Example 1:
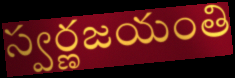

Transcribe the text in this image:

స్వర్ణజయంతి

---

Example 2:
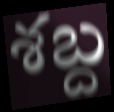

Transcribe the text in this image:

శబ్ద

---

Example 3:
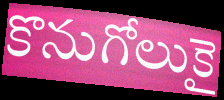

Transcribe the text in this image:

కొనుగోలుకై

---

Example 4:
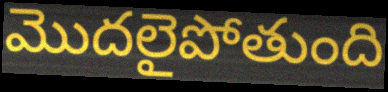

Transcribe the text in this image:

మొదలైపోతుంది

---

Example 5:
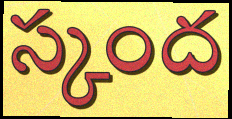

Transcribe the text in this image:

స్కంద